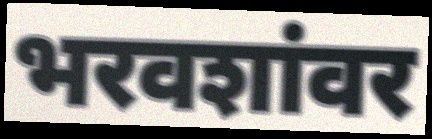
भरवशांवर